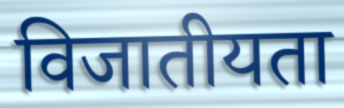
विजातीयता